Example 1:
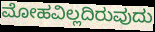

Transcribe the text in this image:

ಮೋಹವಿಲ್ಲದಿರುವುದು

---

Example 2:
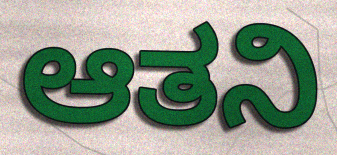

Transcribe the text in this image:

ಆತನಿ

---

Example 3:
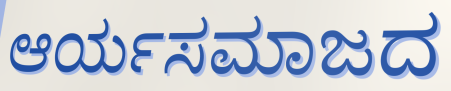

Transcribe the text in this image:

ಆರ್ಯಸಮಾಜದ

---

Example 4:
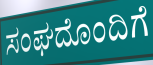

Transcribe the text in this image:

ಸಂಘದೊಂದಿಗೆ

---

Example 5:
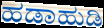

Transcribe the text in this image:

ಹಡಾಹುಡಿ